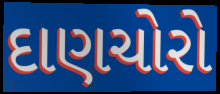
દાણચોરો